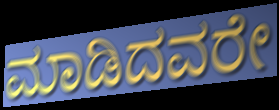
ಮಾಡಿದವರೇ